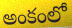
అంకంలో